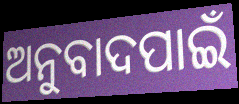
ଅନୁବାଦପାଇଁ